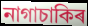
নাগাচাকিৰ